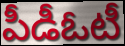
పీడీఓటీ